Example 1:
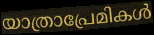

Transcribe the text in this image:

യാത്രാപ്രേമികൾ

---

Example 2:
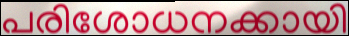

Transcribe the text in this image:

പരിശോധനക്കായി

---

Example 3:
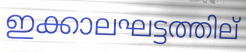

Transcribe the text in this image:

ഇക്കാലഘട്ടത്തില്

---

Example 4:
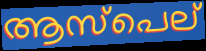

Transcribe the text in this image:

ആസ്പെല്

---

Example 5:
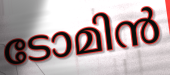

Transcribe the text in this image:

ടോമിൻ